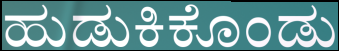
ಹುಡುಕಿಕೊಂಡು